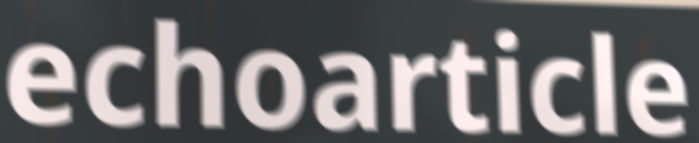
echoarticle